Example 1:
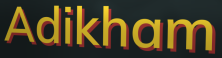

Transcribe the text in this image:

Adikham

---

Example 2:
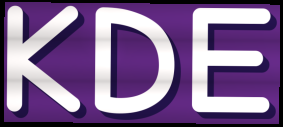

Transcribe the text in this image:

KDE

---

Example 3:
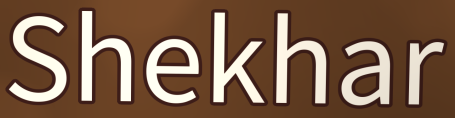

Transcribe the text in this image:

Shekhar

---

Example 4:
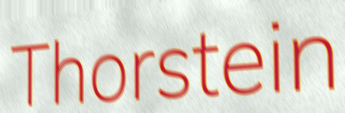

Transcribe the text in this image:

Thorstein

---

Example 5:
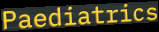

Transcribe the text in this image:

Paediatrics